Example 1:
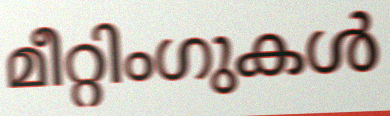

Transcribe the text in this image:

മീറ്റിംഗുകൾ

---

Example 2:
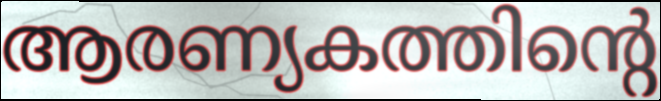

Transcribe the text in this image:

ആരണ്യകത്തിന്റെ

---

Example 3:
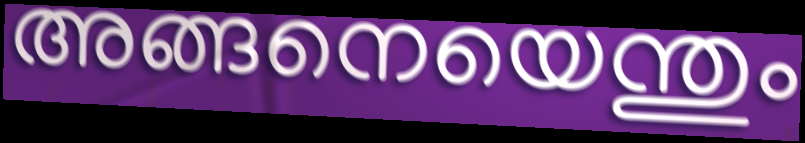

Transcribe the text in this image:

അങ്ങനെയെന്തും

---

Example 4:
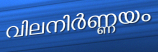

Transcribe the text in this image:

വിലനിർണ്ണയം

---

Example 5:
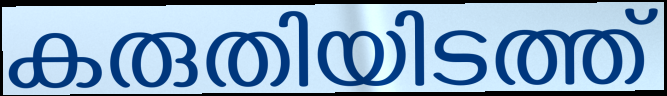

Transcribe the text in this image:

കരുതിയിടത്ത്